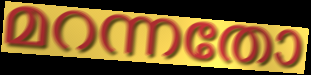
മറന്നതോ